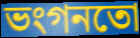
ভংগনতো